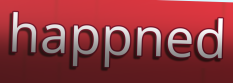
happned